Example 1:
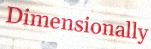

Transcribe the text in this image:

Dimensionally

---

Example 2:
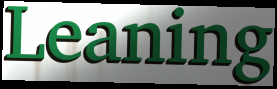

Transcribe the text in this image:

Leaning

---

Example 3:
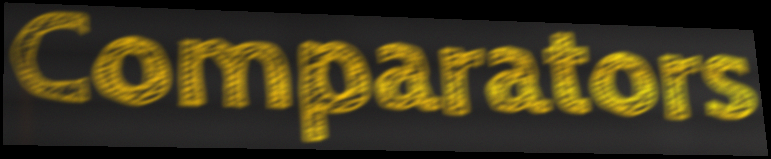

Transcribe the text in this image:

Comparators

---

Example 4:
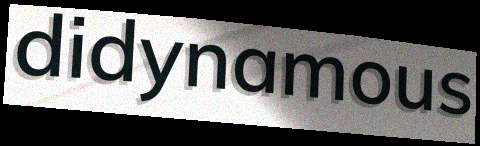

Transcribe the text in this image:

didynamous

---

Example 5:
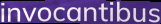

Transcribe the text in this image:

invocantibus